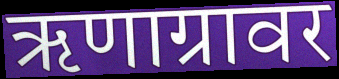
ऋणाग्रावर